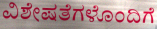
ವಿಶೇಷತೆಗಳೊಂದಿಗೆ